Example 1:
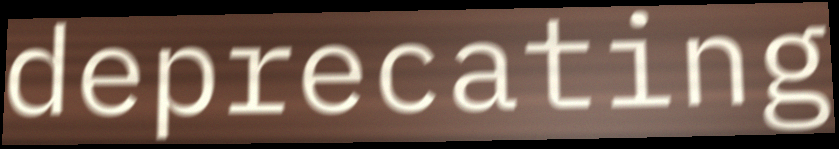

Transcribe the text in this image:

deprecating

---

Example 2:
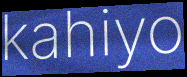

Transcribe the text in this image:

kahiyo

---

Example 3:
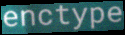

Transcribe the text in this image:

enctype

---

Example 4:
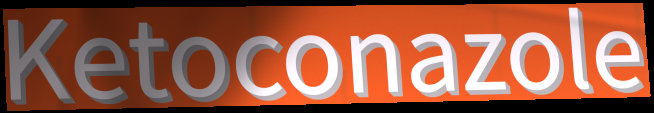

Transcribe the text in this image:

Ketoconazole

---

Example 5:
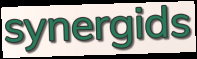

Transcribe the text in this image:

synergids